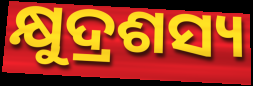
କ୍ଷୁଦ୍ରଶସ୍ୟ